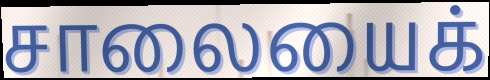
சாலையைக்